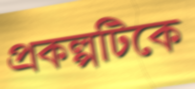
প্রকল্পটিকে